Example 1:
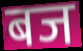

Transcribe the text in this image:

बज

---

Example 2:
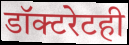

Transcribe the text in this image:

डॉक्‍टरेटही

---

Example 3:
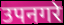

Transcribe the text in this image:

उपनगरे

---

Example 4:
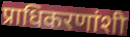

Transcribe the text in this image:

प्राधिकरणांशी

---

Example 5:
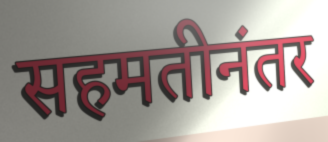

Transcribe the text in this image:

सहमतीनंतर